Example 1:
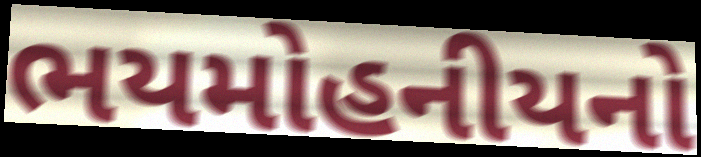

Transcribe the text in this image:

ભયમોહનીયનો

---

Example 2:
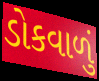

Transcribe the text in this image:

ડોકવાળું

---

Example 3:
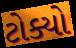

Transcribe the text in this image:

ટોક્યો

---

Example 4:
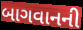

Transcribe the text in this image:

બાગવાનની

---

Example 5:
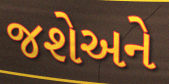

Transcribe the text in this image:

જશેઅને